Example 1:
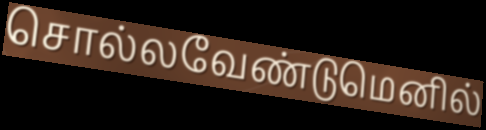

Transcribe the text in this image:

சொல்லவேண்டுமெனில்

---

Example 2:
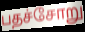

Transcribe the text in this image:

பதச்சோறு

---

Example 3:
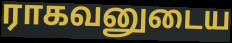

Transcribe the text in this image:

ராகவனுடைய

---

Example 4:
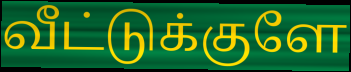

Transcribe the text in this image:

வீட்டுக்குளே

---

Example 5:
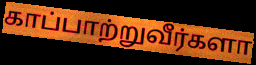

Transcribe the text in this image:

காப்பாற்றுவீர்களா